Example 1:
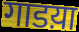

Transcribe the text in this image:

गाडय़ा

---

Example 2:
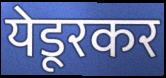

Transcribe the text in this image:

येडूरकर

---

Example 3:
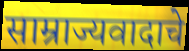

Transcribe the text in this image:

साम्राज्यवादाचे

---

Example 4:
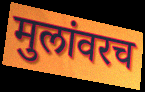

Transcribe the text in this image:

मुलांवरच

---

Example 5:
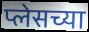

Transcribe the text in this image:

प्लेसच्या